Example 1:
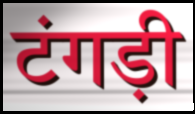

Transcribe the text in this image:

टंगड़ी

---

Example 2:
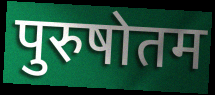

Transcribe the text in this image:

पुरुषोतम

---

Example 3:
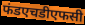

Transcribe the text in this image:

फंडएचडीएफसी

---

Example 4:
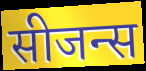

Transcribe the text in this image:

सीजन्स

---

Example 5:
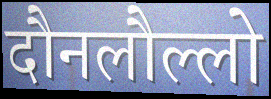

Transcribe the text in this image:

दौनलौल्लो